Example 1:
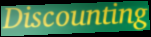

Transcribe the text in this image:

Discounting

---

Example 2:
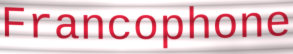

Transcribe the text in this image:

Francophone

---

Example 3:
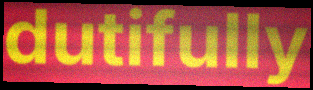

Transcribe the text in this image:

dutifully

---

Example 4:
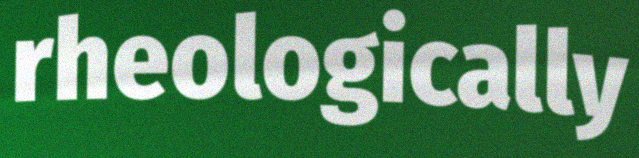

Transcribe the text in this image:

rheologically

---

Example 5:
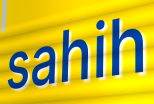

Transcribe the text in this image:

sahih